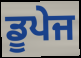
ਡੂਪੇਜ